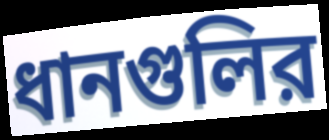
ধানগুলির